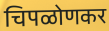
चिपळोणकर